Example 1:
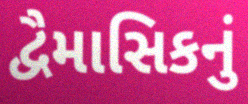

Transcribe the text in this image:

દ્વૈમાસિકનું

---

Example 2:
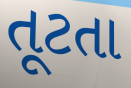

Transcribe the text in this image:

તૂટતા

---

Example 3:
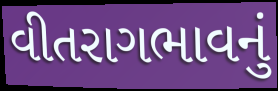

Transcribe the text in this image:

વીતરાગભાવનું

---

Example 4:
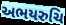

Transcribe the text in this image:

અભયરુચિ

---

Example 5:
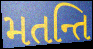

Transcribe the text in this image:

મતન્તિ